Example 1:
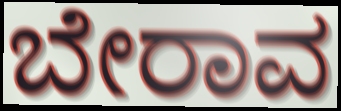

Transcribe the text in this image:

ಬೇರಾವ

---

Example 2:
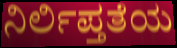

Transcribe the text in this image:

ನಿರ್ಲಿಪ್ತತೆಯ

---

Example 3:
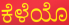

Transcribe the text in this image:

ಕೆಳೆಯೊ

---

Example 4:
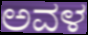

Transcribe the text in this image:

ಅವಳ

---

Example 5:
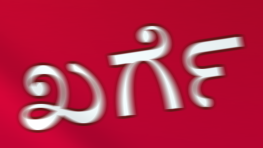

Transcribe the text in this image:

ಖರ್ಗೆ